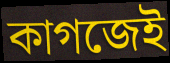
কাগজেই